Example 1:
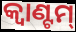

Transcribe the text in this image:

କ୍ୱାଣ୍ଟମ୍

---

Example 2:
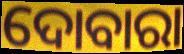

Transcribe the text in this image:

ଦୋବାରା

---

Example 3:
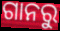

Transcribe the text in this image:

ଗାନରୁ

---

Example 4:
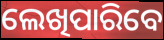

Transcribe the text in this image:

ଲେଖିପାରିବେ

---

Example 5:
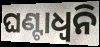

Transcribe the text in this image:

ଘଣ୍ଟାଧ୍ୱନି